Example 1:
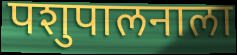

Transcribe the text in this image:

पशुपालनाला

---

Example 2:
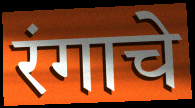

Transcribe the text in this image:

रंगाचे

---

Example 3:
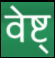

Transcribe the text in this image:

वेष्ट्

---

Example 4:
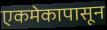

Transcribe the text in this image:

एकमेकापासून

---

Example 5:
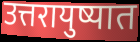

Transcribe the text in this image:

उत्तरायुष्यात